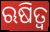
ଋଷିତ୍ୱ